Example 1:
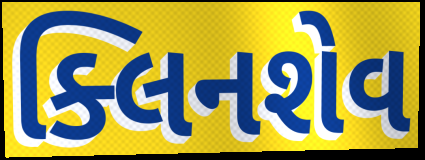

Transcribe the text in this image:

ક્લિનશેવ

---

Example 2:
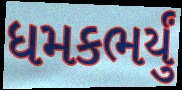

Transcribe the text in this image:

ધમકભર્યું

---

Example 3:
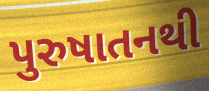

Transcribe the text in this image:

પુરુષાતનથી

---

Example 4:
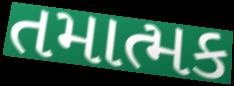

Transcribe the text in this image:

તમાત્મક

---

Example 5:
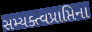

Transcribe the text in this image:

સમ્યક્ત્વપ્રાપ્તિના